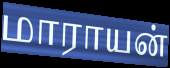
மாராயன்